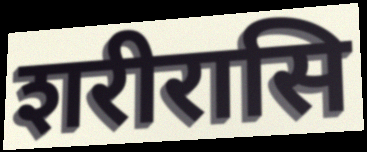
शरीरासि